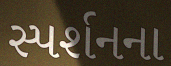
સ્પર્શનના